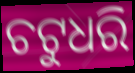
ଚଟୁଧରି